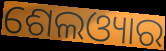
ଶେଲଓ୍ୟାର